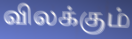
விலக்கும்